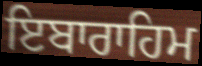
ਇਬਾਰਾਹਿਮ